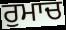
ਰੁਮਾਚ